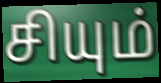
சியும்